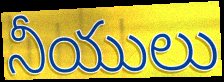
నీయులు